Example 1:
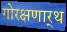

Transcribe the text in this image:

गोरक्षणार्थ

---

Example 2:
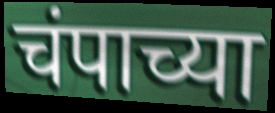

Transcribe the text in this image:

चंपाच्या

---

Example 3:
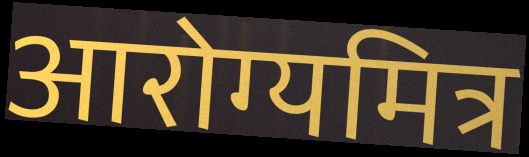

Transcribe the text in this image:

आरोग्यमित्र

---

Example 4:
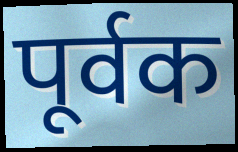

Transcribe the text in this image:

पूर्वक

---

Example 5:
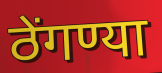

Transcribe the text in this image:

ठेंगण्या